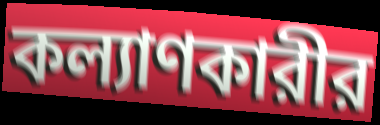
কল্যাণকারীর